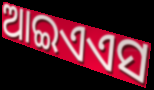
ଆଇଏଏସ